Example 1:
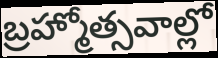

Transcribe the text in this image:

బ్రహ్మోత్సవాల్లో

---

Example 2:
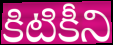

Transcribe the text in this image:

కిటికీని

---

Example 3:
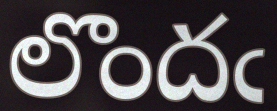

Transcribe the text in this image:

లొందఁ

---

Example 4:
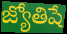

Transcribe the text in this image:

జ్యోతిషే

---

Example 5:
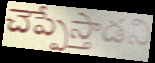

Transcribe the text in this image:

చెప్పేస్తాడని